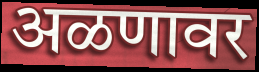
अळणावर